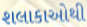
શલાકાઓથી